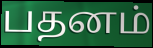
பதனம்